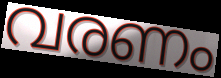
വരണം